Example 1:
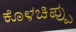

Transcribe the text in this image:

ಕೊಳಚಿಪ್ಪು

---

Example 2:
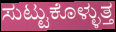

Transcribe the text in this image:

ಸುಟ್ಟುಕೊಳ್ಳುತ್ತ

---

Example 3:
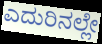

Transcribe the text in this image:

ಎದುರಿನಲ್ಲೇ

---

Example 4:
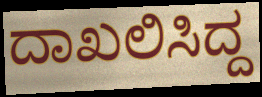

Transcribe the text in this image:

ದಾಖಲಿಸಿದ್ದ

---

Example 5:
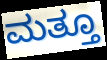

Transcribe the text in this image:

ಮತ್ತೂ